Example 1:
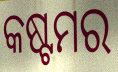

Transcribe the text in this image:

କଷ୍ଟମର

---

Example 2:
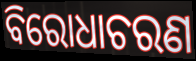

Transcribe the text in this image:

ବିରୋଧାଚରଣ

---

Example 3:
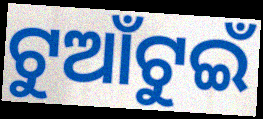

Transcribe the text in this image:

ଟୁଆଁଟୁଇଁ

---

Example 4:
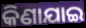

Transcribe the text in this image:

କିଣାଯାଇ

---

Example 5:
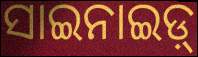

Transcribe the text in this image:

ସାଇନାଇଡ଼୍